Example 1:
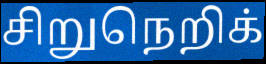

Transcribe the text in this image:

சிறுநெறிக்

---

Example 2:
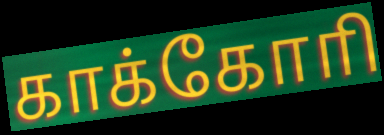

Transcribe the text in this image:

காக்கோரி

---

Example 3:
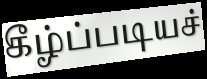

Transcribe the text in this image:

கீழ்ப்படியச்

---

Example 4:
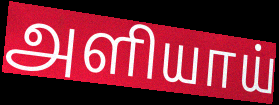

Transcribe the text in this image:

அளியாய்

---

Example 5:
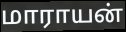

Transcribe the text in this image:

மாராயன்